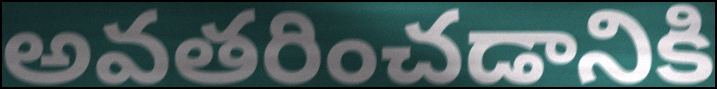
అవతరించడానికి